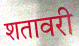
शतावरी